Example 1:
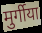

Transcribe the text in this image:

मुर्गीया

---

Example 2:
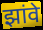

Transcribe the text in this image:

झांवे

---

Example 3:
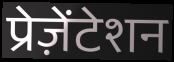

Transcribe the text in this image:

प्रेज़ेंटेशन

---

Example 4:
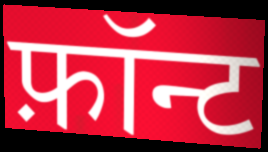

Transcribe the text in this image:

फ़ॉन्ट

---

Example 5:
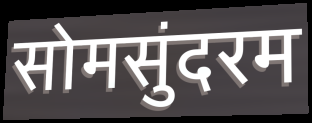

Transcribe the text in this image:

सोमसुंदरम